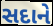
સદાને